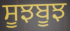
ਸੂਝਬੂਝ